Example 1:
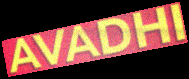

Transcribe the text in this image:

AVADHI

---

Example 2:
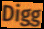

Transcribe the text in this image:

Digg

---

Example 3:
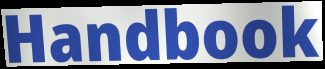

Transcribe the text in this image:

Handbook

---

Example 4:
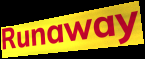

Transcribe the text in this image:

Runaway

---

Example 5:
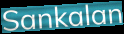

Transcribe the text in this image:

Sankalan